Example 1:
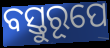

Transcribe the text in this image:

ବସ୍ତୁରୂପେ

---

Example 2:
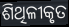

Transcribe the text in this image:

ଶିଥିଳୀକୃତ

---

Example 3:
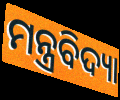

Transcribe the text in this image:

ମନ୍ତ୍ରବିଦ୍ୟା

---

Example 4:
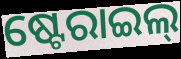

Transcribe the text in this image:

ଷ୍ଟେରାଇଲ୍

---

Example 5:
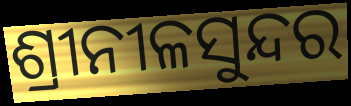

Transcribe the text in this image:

ଶ୍ରୀନୀଳସୁନ୍ଦର